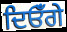
ਦਿਓਁਗੇ